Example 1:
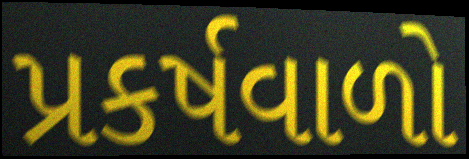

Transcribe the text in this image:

પ્રકર્ષવાળો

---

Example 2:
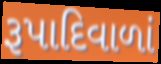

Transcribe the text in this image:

રૂપાદિવાળાં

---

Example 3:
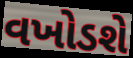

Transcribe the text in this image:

વખોડશે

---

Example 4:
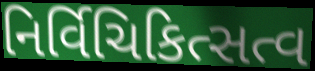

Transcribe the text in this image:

નિર્વિચિકિત્સત્વ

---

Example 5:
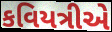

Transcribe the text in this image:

કવિયત્રીએ